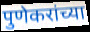
पुणेकरांच्या